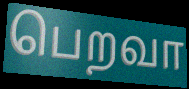
பெறவா